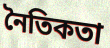
নৈতিকতা